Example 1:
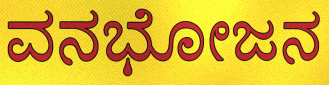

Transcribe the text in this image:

ವನಭೋಜನ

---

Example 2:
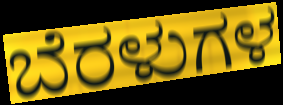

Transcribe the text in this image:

ಬೆರಳುಗಳ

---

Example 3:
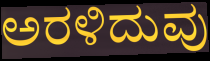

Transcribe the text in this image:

ಅರಳಿದುವು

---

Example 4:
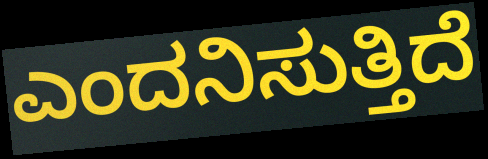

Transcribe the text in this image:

ಎಂದನಿಸುತ್ತಿದೆ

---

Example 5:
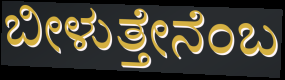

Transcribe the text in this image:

ಬೀಳುತ್ತೇನೆಂಬ